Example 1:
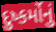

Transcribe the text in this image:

દુષ્કર્મોનું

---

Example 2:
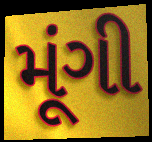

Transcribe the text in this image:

મૂંગી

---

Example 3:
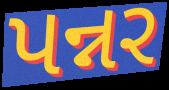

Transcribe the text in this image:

પન્નર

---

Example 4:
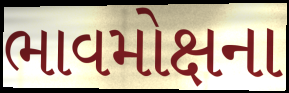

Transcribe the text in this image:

ભાવમોક્ષના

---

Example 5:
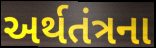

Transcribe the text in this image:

અર્થતંત્રના